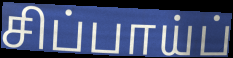
சிப்பாய்ப்